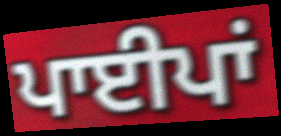
ਪਾਈਪਾਂ